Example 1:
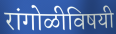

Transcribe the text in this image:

रांगोळीविषयी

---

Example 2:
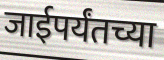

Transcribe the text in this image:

जाईपर्यंतच्या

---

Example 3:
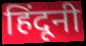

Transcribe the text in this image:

हिंदूनी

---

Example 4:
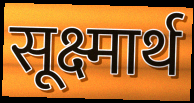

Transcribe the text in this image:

सूक्ष्मार्थ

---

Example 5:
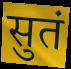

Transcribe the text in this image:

सुतं